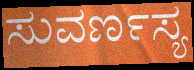
ಸುವರ್ಣಸ್ಯ